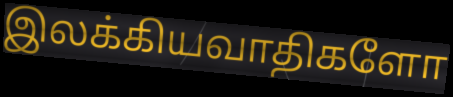
இலக்கியவாதிகளோ